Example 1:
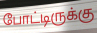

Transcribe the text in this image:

போட்டிருக்கு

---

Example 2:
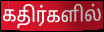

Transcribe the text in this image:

கதிர்களில்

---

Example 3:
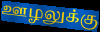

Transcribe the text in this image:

ஊழலுக்கு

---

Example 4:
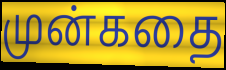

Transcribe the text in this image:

முன்கதை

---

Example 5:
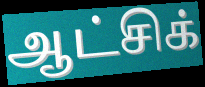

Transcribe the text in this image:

ஆட்சிக்